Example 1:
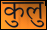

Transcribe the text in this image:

कुलु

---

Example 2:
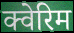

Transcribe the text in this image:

क्वेरिम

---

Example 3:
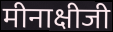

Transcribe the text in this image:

मीनाक्षीजी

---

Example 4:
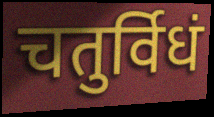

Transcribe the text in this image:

चतुर्विधं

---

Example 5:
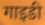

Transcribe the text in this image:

गाइडी